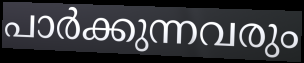
പാർക്കുന്നവരും